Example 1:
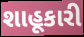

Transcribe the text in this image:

શાહૂકારી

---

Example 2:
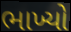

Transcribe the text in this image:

ભાખ્યો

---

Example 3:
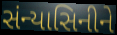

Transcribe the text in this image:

સંન્યાસિનીને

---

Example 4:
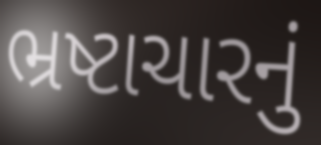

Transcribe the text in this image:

ભ્રષ્ટાચારનું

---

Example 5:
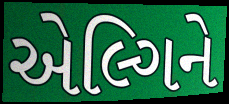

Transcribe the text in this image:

એલ્ગિને